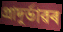
প্ৰাদুৰ্ভাৱৰ